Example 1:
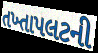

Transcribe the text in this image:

તખ્તાપલટની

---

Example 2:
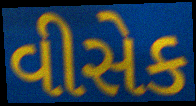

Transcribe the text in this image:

વીસેક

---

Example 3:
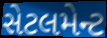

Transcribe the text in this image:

સેટલમેન્ટ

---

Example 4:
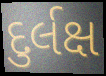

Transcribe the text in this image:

દુર્લક્ષ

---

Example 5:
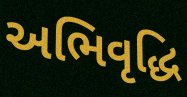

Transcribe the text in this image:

અભિવૃદ્ધિ